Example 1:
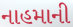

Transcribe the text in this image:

નાહમાની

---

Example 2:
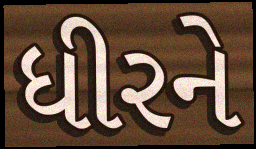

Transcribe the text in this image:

ધીરને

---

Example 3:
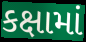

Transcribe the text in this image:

કક્ષામાં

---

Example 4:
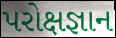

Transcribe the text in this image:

પરોક્ષજ્ઞાન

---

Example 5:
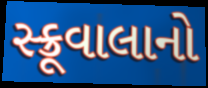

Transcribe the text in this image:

સ્ક્રૂવાલાનો